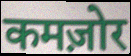
कमज़ोर